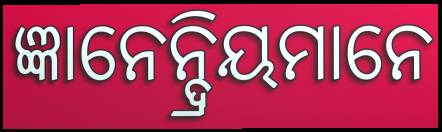
ଜ୍ଞାନେନ୍ଦ୍ରିୟମାନେ